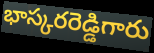
భాస్కరరెడ్డిగారు